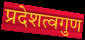
प्रदेशत्वगुण